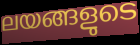
ലയങ്ങളുടെ